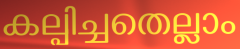
കല്പിച്ചതെല്ലാം